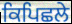
ਕਿਪਿਛਲੇ